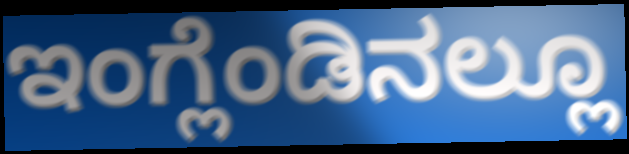
ಇಂಗ್ಲೆಂಡಿನಲ್ಲೂ